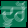
ਦੂਰੋਂ